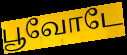
பூவோடே